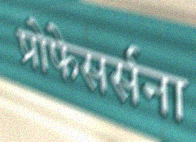
प्रोफेसर्सना